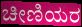
ಚೀಣಿಯರ